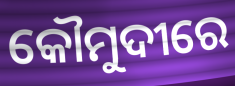
କୌମୁଦୀରେ